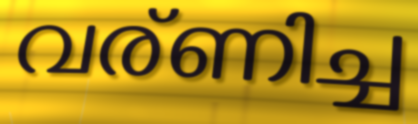
വര്ണിച്ച